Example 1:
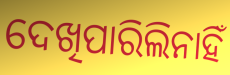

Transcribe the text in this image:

ଦେଖିପାରିଲିନାହିଁ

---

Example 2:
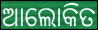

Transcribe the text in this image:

ଆଲୋକିତ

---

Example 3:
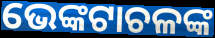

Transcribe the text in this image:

ଭେଙ୍କଟାଚଳଙ୍କ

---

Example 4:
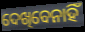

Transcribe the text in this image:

ଦେଖିବେନାହିଁ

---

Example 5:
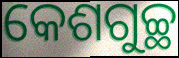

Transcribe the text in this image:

କେଶଗୁଚ୍ଛ